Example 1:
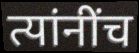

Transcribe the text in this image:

त्यांनींच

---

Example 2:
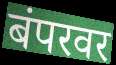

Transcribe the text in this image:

बंपरवर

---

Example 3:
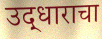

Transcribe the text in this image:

उद्धाराचा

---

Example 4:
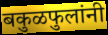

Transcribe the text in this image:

बकुळफुलांनी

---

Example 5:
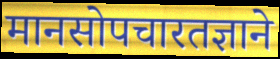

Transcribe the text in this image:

मानसोपचारतज्ञाने